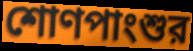
শোণপাংশুর